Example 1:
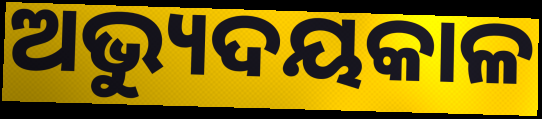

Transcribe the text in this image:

ଅଭ୍ୟୁଦୟକାଳ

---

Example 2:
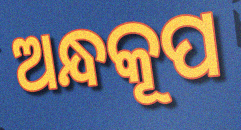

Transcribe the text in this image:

ଅନ୍ଧକୂପ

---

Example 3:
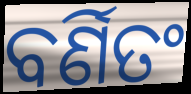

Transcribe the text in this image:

ବର୍ଣିତଂ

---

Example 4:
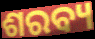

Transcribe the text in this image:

ଶରବ୍ୟ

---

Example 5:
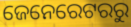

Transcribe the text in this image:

ଜେନେରେଟରରୁ